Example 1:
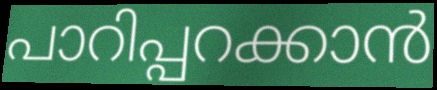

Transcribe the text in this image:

പാറിപ്പറക്കാൻ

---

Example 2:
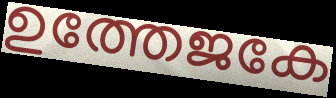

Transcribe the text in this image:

ഉത്തേജകേ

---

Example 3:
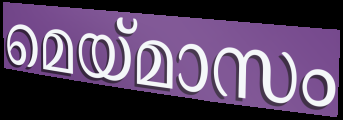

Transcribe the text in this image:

മെയ്മാസം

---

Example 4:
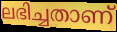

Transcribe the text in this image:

ലഭിച്ചതാണ്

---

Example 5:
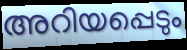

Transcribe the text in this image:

അറിയപ്പെടും